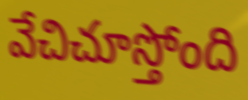
వేచిచూస్తోంది